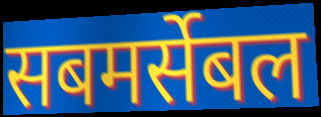
सबमर्सेबल